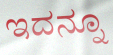
ಇದನ್ನೂ